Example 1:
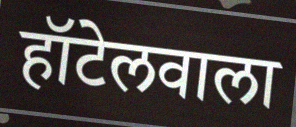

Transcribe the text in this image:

हॉटेलवाला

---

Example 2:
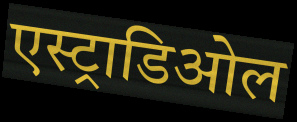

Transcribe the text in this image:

एस्ट्राडिओल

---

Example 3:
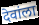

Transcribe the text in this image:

देवांला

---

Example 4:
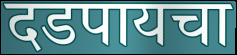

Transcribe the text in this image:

दडपायचा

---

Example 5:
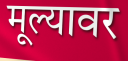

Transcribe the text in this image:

मूल्यावर